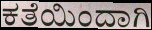
ಕತೆಯಿಂದಾಗಿ